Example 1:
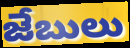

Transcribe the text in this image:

జేబులు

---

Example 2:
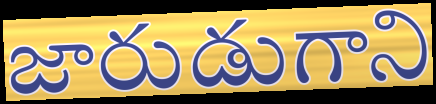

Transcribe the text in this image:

జారుడుగాని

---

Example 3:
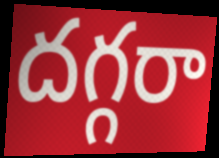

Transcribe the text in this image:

దగ్గరా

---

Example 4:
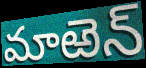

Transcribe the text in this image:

మాఱెన్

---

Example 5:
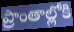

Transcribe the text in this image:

ప్రాంతాల్లోకి